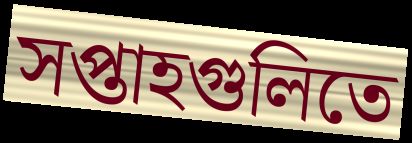
সপ্তাহগুলিতে